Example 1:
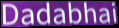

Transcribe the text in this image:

Dadabhai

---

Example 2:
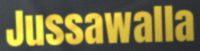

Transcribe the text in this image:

Jussawalla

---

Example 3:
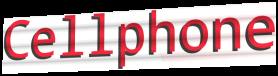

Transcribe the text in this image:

Cellphone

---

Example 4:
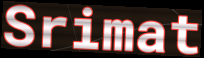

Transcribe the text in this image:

Srimat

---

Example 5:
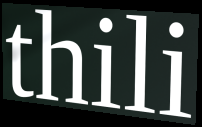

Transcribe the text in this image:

thili